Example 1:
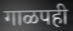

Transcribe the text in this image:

गाळपही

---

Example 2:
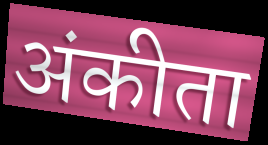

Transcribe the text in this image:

अंकीता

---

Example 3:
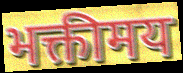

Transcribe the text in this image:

भक्तीमय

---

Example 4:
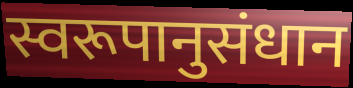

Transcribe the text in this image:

स्वरूपानुसंधान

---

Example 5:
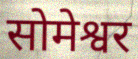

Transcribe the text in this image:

सोमेश्वर